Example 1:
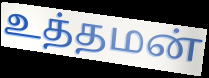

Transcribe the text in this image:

உத்தமன்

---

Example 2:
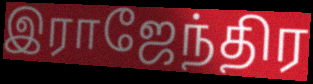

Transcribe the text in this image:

இராஜேந்திர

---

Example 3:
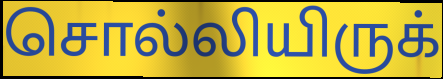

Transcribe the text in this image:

சொல்லியிருக்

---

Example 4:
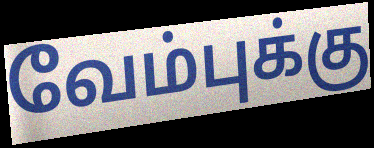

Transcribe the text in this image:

வேம்புக்கு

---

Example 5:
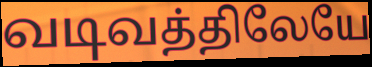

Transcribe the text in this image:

வடிவத்திலேயே